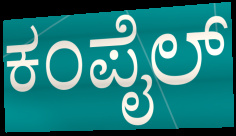
ಕಂಪೈಲ್